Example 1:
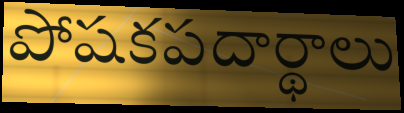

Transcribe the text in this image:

పోషకపదార్థాలు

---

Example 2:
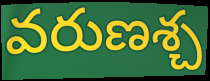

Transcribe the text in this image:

వరుణశ్చ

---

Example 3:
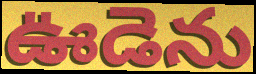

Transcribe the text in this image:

ఊడెను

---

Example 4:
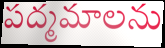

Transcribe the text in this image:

పద్మమాలను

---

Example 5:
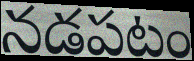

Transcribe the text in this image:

నడపటం